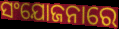
ସଂଯୋଜନାରେ